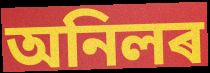
অনিলৰ